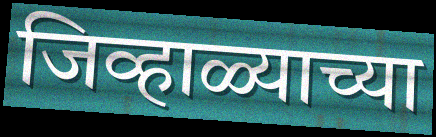
जिव्हाळ्याच्या